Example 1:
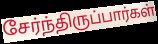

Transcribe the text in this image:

சேர்ந்திருப்பார்கள்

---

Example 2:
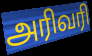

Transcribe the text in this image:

அரிவரி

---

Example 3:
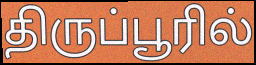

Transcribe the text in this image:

திருப்பூரில்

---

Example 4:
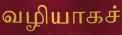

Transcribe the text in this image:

வழியாகச்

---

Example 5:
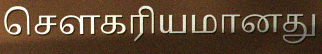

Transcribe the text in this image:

சௌகரியமானது